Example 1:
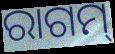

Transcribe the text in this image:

ରାଗମ୍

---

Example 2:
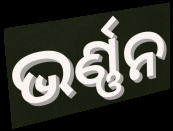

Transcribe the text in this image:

ଭର୍ଣ୍ଣନ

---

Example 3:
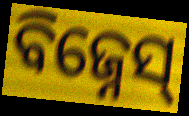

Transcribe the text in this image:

ବିଜ୍ନେସ୍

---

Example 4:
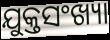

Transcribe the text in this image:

ଯୁକ୍ତସଂଖ୍ୟା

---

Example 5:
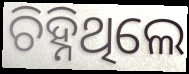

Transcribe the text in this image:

ଚିହ୍ନିଥିଲେ